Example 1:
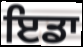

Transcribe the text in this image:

ਇਡਾ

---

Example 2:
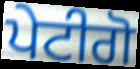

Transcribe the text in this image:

ਪੇਟੀਗੋ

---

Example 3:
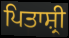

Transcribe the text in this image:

ਪਿਤਾਸ਼੍ਰੀ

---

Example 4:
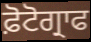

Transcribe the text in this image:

ਫ਼ੋਟੋਗ੍ਰਾਫ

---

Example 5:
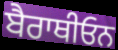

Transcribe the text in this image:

ਬੈਰਾਥੀਓਨ